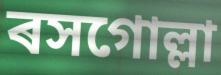
ৰসগোল্লা